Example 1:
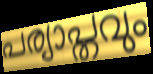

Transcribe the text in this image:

പര്യാപ്തവും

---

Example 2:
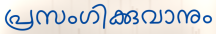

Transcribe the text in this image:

പ്രസംഗിക്കുവാനും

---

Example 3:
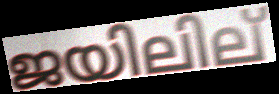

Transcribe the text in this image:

ജയിലില്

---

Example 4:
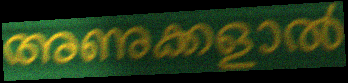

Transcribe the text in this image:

അണുക്കളാൽ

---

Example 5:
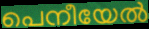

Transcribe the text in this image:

പെനീയേൽ